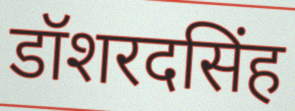
डॉशरदसिंह